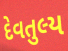
દેવતુલ્ય